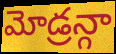
మోడ్రన్గా